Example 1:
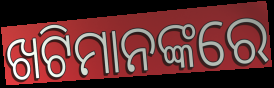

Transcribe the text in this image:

ଖଟିମାନଙ୍କରେ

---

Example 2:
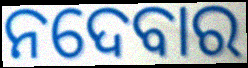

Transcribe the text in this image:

ନଦେବାର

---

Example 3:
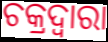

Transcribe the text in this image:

ଚକ୍ରଦ୍ୱାରା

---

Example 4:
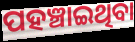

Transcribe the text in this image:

ପହଞ୍ଚାଇଥିବା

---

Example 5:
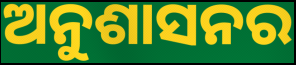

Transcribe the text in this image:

ଅନୁଶାସନର